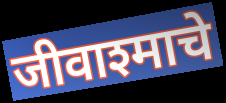
जीवाश्माचे